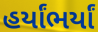
હર્યાંભર્યાં